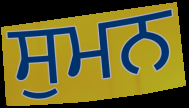
ਸੁਮਨ